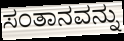
ಸಂತಾನವನ್ನು